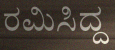
ರಮಿಸಿದ್ದ